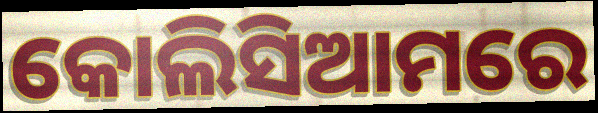
କୋଲିସିଆମରେ